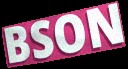
BSON